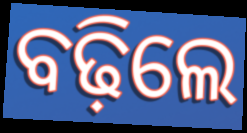
ବଢ଼ିଲେ